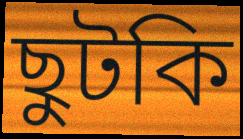
ছুটকি